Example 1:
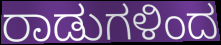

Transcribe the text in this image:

ರಾಡುಗಳಿಂದ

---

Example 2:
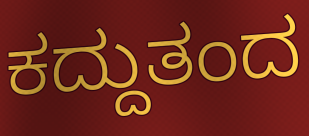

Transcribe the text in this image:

ಕದ್ದುತಂದ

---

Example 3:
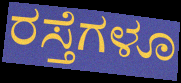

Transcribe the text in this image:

ರಸ್ತೆಗಳೂ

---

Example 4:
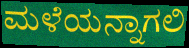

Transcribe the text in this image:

ಮಳೆಯನ್ನಾಗಲಿ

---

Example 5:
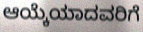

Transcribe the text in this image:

ಆಯ್ಕೆಯಾದವರಿಗೆ